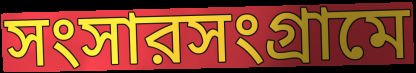
সংসারসংগ্রামে